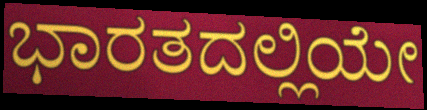
ಭಾರತದಲ್ಲಿಯೇ